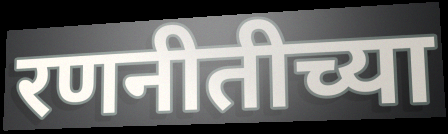
रणनीतीच्या